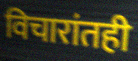
विचारांतही